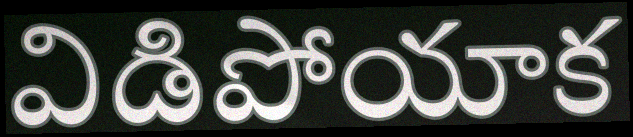
విడిపోయాక